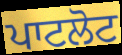
ਪਾਟਲੋਟ